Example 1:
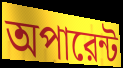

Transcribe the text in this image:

অপারেন্ট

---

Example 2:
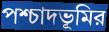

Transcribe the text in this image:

পশ্চাদভূমির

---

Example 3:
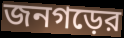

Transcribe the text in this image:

জনগড়ের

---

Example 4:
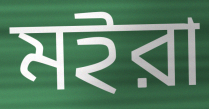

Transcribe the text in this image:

মইরা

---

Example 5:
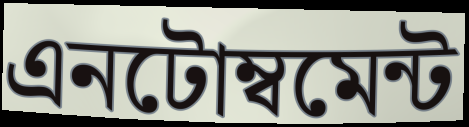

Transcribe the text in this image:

এনটোম্বমেন্ট